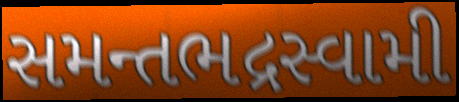
સમન્તભદ્રસ્વામી